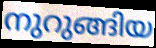
നുറുങ്ങിയ